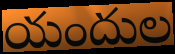
యందుల